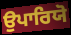
ਉਪਾਰਿਯੋ